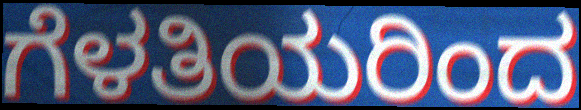
ಗೆಳತಿಯರಿಂದ